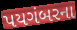
પયગંબરના